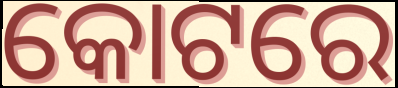
କୋଟରେ